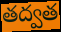
తద్వత